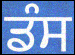
ਡੰਸ